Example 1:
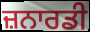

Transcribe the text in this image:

ਜ਼ਨਾਰਡੀ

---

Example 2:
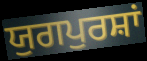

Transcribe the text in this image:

ਯੁਗਪੁਰਸ਼ਾਂ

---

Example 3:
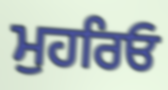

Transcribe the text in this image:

ਮੁਹਰਿਓ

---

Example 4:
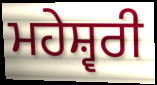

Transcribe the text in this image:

ਮਹੇਸ਼੍ਵਰੀ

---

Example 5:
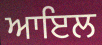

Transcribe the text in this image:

ਆਇਲ